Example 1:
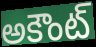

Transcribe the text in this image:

అకౌంట్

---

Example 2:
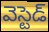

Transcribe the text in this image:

వెస్టెడ్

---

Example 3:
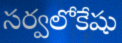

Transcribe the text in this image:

సర్వలోకేషు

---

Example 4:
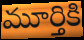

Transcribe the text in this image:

మూర్తికి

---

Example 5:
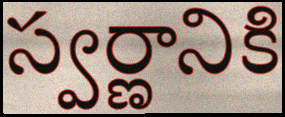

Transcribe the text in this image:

స్వర్ణానికి